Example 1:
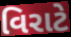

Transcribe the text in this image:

વિરાટે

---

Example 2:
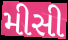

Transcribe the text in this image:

મીસી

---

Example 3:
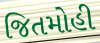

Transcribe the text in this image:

જિતમોહી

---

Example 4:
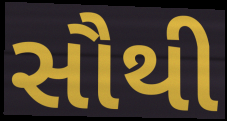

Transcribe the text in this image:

સૌથી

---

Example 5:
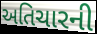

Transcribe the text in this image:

અતિચારની